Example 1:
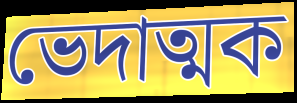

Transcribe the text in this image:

ভেদাত্মক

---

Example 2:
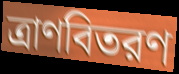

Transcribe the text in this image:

ত্রাণবিতরণ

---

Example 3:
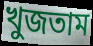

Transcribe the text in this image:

খুজতাম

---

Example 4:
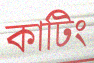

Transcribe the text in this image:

কাটিং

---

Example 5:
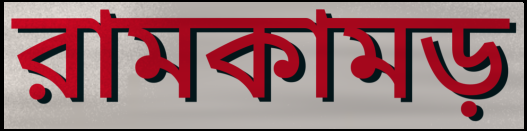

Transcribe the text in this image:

রামকামড়